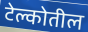
टेल्कोतील